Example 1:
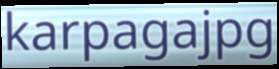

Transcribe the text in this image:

karpagajpg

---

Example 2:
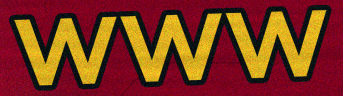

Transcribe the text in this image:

WWW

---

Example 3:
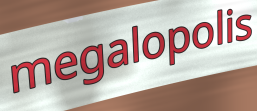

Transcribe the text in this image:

megalopolis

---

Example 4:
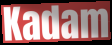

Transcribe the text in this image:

Kadam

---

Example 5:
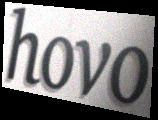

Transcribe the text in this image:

hovo